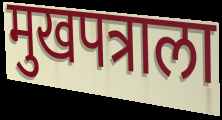
मुखपत्राला